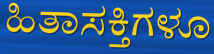
ಹಿತಾಸಕ್ತಿಗಳೂ